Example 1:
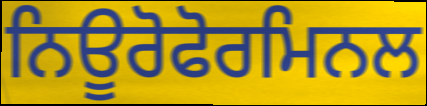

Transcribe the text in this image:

ਨਿਊਰੋਫੋਰਮਿਨਲ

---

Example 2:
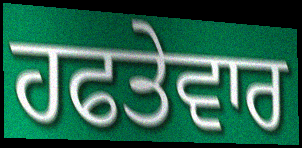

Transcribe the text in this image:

ਹਫਤੇਵਾਰ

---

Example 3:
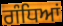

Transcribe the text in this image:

ਗੰਧਿਆਂ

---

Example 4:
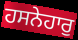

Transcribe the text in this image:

ਹਸਨੇਹਾਰੁ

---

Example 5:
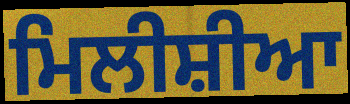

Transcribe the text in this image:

ਮਿਲੀਸ਼ੀਆ